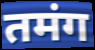
तमंग